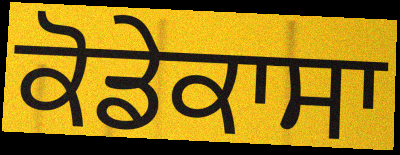
ਕੋਡੇਕਾਸਾ